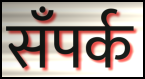
सँपर्क